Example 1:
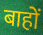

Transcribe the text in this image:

बाहों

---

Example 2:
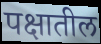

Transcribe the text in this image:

पक्षातील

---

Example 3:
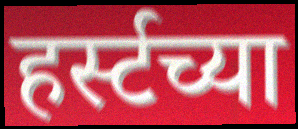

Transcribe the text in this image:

हर्स्टच्या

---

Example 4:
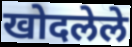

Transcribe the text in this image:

खोदलेले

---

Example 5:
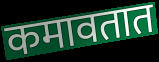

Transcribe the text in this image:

कमावतात